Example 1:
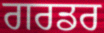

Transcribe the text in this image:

ਗਰਡਰ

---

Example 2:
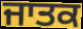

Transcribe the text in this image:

ਜਾਤਕ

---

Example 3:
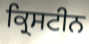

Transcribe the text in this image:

ਕ੍ਰਿਸਟੀਨ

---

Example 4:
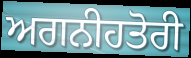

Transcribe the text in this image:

ਅਗਨੀਹਤੋਰੀ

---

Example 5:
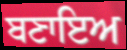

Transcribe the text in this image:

ਬਣਾਇਅ